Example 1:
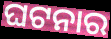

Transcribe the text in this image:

ଘଟନାର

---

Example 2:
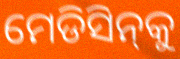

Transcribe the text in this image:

ମେଡିସିନ୍‌କୁ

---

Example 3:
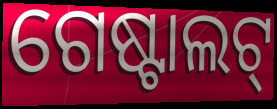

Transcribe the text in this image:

ଗେଷ୍ଟାଲଟ୍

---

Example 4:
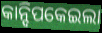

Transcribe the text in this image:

କାନ୍ଦିପକେଇଲା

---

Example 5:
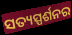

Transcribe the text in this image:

ସତ୍ୟସ୍ପର୍ଶନର